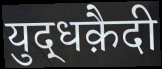
युद्धक़ैदी